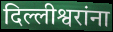
दिल्लीश्वरांना